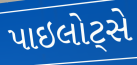
પાઇલોટ્સે